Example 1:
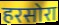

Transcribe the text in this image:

हरसोरा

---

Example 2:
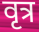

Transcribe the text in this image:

वृत्र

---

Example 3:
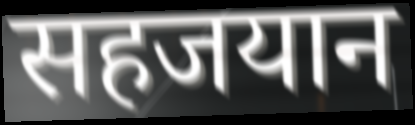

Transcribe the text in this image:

सहजयान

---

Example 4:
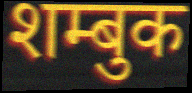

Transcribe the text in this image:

शम्बुक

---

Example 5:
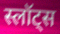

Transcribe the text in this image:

स्लॉट्स